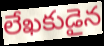
లేఖకుడైన